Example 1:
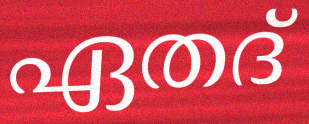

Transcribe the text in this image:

ഏതദ്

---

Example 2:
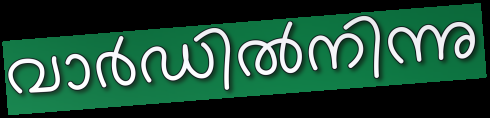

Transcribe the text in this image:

വാർഡിൽനിന്നു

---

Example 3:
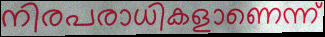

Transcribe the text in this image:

നിരപരാധികളാണെന്ന്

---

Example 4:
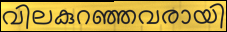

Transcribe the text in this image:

വിലകുറഞ്ഞവരായി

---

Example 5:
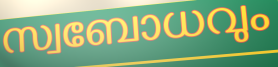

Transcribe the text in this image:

സ്വബോധവും